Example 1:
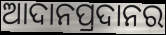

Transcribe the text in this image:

ଆଦାନପ୍ରଦାନର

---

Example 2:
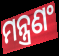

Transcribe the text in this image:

ମନ୍ତ୍ରଣଂ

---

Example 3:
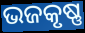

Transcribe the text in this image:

ଭଜକୃଷ୍ଣ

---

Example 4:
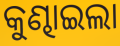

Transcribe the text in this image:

କୁଣ୍ଢାଇଲା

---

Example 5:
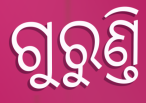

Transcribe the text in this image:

ଗୁରୁଣ୍ତି